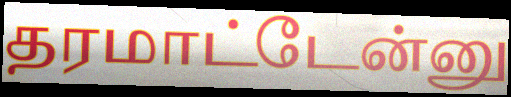
தரமாட்டேன்னு